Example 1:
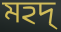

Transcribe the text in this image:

মহদ্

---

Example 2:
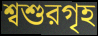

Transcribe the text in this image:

শ্বশুরগৃহ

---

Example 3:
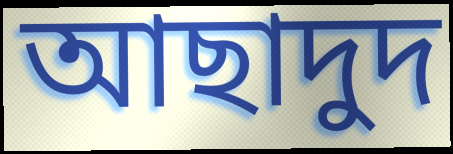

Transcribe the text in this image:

আছাদুদ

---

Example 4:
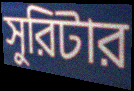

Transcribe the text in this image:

সুরিটার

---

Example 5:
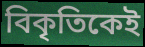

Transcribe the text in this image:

বিকৃতিকেই